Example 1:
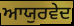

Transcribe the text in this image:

ਆਯੁਰਵੇਦ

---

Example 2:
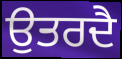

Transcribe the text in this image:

ਉਤਰਦੈ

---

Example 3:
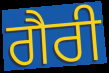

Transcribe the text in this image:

ਗੈਰੀ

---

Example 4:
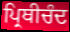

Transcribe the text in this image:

ਪ੍ਰਿਥੀਚੰਦ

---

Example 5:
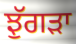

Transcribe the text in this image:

ਝੁੱਗੜਾ